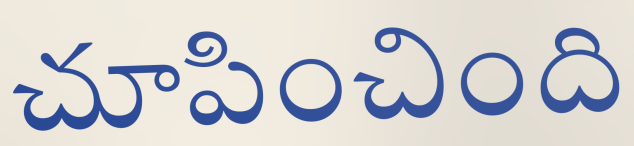
చూపించింది